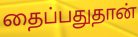
தைப்பதுதான்